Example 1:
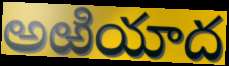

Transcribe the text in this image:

అఱియాద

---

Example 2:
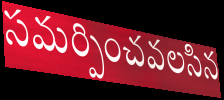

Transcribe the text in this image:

సమర్పించవలసిన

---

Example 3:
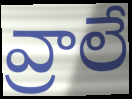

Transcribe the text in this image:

వ్రాలే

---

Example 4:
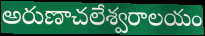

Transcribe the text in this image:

అరుణాచలేశ్వరాలయం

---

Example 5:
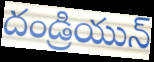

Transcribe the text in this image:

దండ్రియున్